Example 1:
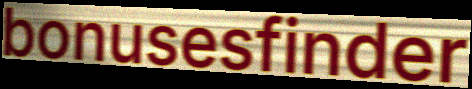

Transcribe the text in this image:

bonusesfinder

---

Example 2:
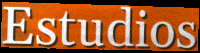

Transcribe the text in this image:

Estudios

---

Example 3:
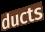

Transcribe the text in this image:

ducts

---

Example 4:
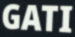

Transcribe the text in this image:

GATI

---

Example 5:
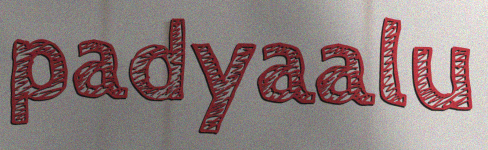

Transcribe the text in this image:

padyaalu